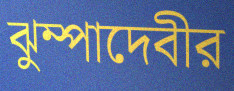
ঝুম্পাদেবীর